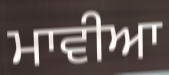
ਮਾਵੀਆ